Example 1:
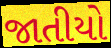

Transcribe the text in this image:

જાતીયો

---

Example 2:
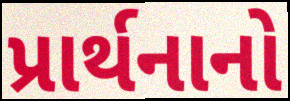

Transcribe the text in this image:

પ્રાર્થનાનો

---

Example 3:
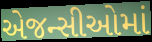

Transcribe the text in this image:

એજન્સીઓમાં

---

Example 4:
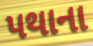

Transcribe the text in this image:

પથાના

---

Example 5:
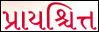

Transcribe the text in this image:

પ્રાયશ્ચિત્ત